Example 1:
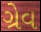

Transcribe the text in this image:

ગ્રેવ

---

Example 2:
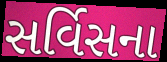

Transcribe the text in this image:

સર્વિસના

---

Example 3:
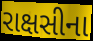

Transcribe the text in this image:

રાક્ષસીના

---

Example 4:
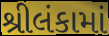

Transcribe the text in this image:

શ્રીલંકામાં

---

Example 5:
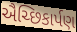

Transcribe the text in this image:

ઐચ્છિકાર્પણ